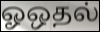
ஓஒதல்